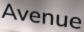
Avenue